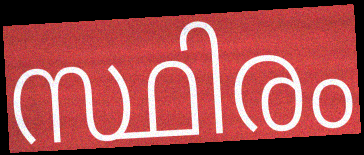
സ്ഥിരം